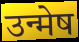
उन्मेष